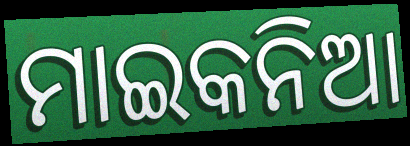
ମାଇକନିଆ